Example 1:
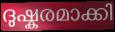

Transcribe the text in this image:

ദുഷ്കരമാക്കി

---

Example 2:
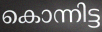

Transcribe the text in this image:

കൊന്നിട്ട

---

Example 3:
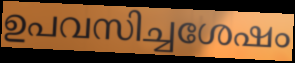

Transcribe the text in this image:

ഉപവസിച്ചശേഷം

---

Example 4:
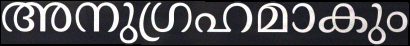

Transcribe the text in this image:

അനുഗ്രഹമാകും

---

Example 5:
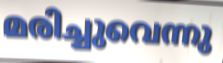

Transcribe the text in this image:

മരിച്ചുവെന്നു